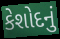
કેશોદનું